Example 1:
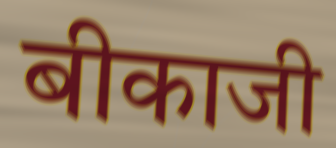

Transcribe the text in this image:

बीकाजी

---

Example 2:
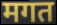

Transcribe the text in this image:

मगत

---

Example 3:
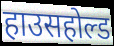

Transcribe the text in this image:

हाउसहोल्ड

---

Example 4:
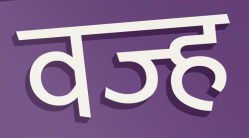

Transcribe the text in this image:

वज्ह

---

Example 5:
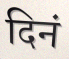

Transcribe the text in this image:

दिनं